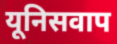
यूनिसवाप